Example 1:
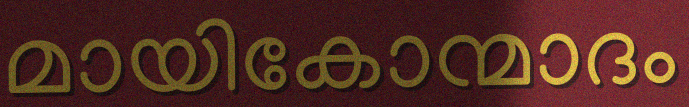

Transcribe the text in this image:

മായികോന്മാദം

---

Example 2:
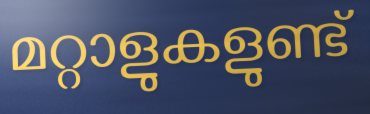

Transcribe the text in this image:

മറ്റാളുകളുണ്ട്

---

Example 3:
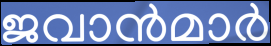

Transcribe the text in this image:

ജവാൻമാർ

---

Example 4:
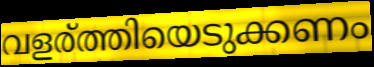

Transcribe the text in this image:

വളര്ത്തിയെടുക്കണം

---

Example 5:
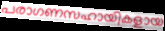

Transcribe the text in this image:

പരാഗണസഹായികളായ